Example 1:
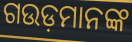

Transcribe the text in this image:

ଗଉଡ଼ମାନଙ୍କ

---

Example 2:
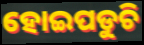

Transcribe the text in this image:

ହୋଇପଡୁଚି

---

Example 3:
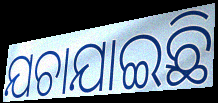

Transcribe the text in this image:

ଯଚାଯାଇଛି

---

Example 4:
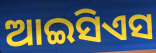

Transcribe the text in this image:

ଆଇସିଏସ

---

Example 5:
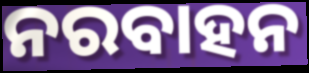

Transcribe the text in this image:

ନରବାହନ